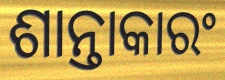
ଶାନ୍ତାକାରଂ